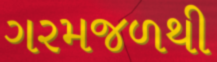
ગરમજળથી